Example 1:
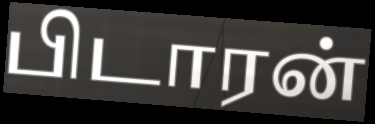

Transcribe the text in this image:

பிடாரன்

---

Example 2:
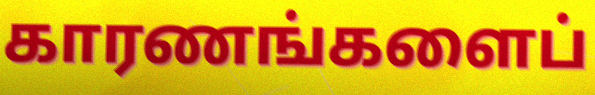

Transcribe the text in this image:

காரணங்களைப்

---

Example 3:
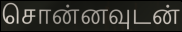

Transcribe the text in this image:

சொன்னவுடன்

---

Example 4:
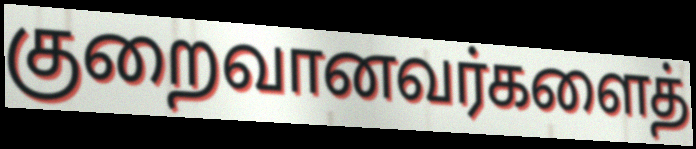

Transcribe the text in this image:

குறைவானவர்களைத்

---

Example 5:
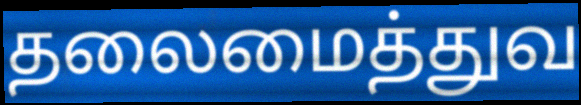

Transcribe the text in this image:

தலைமைத்துவ